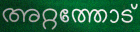
അറ്റത്തോട്